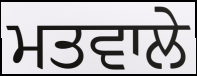
ਮਤਵਾਲੇ